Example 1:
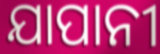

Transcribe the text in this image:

ଯାପାନୀ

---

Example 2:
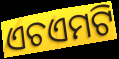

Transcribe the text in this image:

ଏଚଏମଟି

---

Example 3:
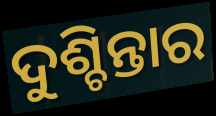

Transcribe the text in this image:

ଦୁଶ୍ଚିନ୍ତାର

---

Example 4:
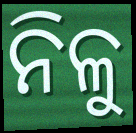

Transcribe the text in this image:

ନିଳୁ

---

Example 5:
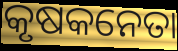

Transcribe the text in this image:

କୃଷକନେତା